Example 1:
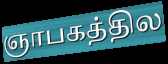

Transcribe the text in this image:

ஞாபகத்தில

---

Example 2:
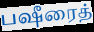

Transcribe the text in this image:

பஷீரைத்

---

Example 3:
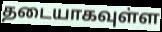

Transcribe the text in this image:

தடையாகவுள்ள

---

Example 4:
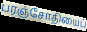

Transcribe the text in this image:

பரஞ்சோதியைப்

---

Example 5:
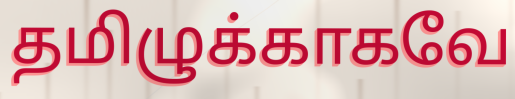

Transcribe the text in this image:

தமிழுக்காகவே